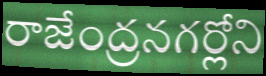
రాజేంద్రనగర్లోని